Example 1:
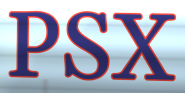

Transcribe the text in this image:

PSX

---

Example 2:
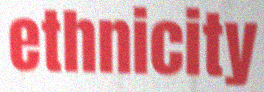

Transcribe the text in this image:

ethnicity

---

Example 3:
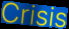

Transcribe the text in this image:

Crisis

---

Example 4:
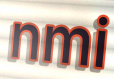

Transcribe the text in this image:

nmi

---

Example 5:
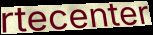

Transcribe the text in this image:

rtecenter